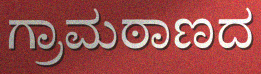
ಗ್ರಾಮಠಾಣದ